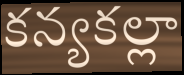
కన్యకల్లా